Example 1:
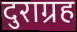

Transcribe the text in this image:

दुराग्रह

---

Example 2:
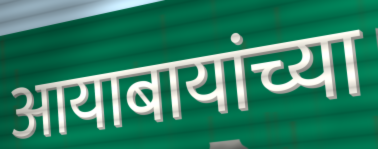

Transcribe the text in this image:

आयाबायांच्या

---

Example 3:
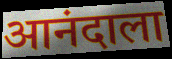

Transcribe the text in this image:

आनंदाला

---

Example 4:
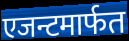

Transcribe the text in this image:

एजन्टमार्फत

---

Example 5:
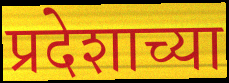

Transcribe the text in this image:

प्रदेशाच्या